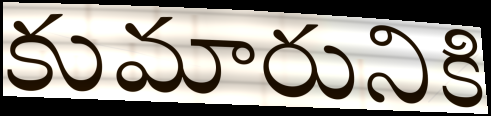
కుమారునికి